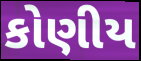
કોણીય